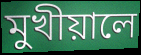
মুখীয়ালে